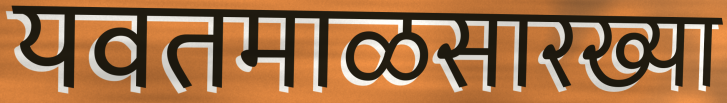
यवतमाळसारख्या